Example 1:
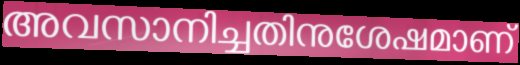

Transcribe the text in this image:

അവസാനിച്ചതിനുശേഷമാണ്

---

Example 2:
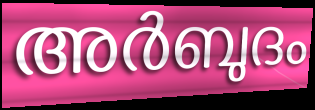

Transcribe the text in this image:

അർബുദം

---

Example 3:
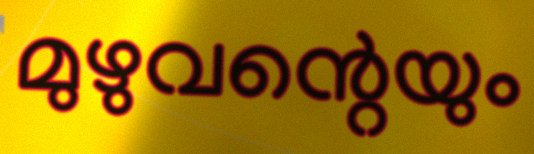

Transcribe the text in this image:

മുഴുവന്റെയും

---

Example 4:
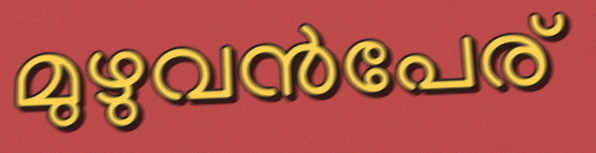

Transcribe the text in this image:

മുഴുവൻപേര്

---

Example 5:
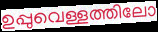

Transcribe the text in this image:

ഉപ്പുവെള്ളത്തിലോ